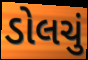
ડોલચું